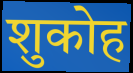
शुकोह